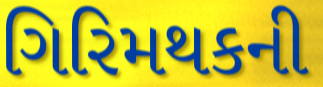
ગિરિમથકની